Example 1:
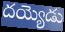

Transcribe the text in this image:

దయ్యెడు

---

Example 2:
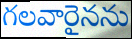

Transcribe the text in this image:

గలవారైనను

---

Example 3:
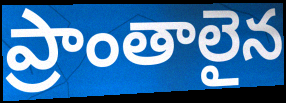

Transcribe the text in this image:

ప్రాంతాలైన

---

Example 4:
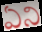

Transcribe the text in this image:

ఏని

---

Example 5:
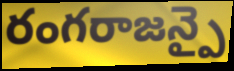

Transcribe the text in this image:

రంగరాజన్పై